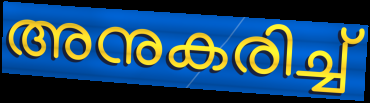
അനുകരിച്ച്